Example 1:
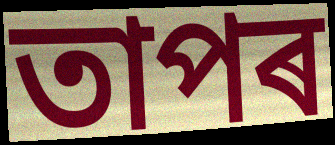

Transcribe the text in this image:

তাপৰ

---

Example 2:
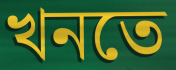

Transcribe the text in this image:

খনতে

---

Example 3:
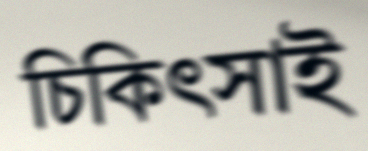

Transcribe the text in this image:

চিকিৎসাই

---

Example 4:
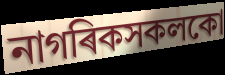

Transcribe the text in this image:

নাগৰিকসকলকো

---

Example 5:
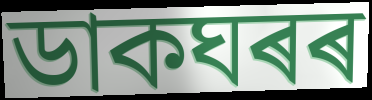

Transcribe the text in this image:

ডাকঘৰৰ